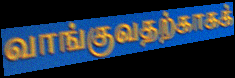
வாங்குவதற்காகக்